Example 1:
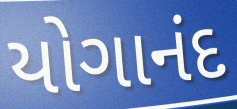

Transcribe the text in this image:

યોગાનંદ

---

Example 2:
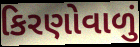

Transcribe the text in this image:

કિરણોવાળું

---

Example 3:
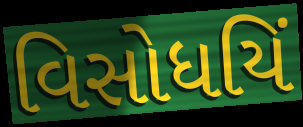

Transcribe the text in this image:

વિસોધયિં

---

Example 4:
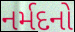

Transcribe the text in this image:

નર્મદનો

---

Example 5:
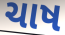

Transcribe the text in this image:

ચાષ